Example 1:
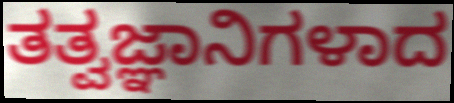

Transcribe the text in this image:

ತತ್ವಜ್ಞಾನಿಗಳಾದ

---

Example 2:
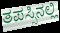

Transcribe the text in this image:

ತಪಸ್ಸಿನಲ್ಲಿ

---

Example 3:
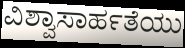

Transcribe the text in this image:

ವಿಶ್ವಾಸಾರ್ಹತೆಯು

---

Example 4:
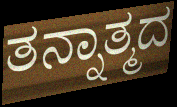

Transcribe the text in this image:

ತನ್ನಾತ್ಮದ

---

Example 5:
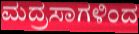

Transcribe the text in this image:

ಮದ್ರಸಾಗಳಿಂದ